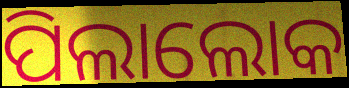
ପିଲାଲୋକ